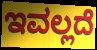
ಇವಲ್ಲದೆ